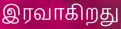
இரவாகிறது